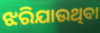
ଝରିଯାଉଥିବା